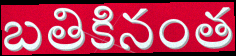
బతికినంత